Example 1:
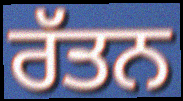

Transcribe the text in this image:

ਰੱਤਨ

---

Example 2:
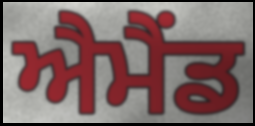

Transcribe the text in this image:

ਐਮੈਂਡ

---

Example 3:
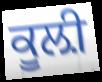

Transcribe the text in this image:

ਕੂਲ਼ੀ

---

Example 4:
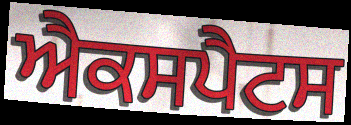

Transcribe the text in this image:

ਐਕਸਪੈਟਸ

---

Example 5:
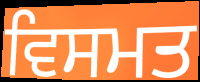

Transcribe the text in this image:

ਵਿਸਮਤ